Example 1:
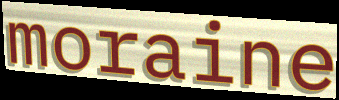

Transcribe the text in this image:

moraine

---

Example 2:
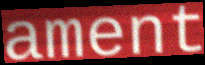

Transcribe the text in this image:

ament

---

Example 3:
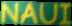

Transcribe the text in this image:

NAUI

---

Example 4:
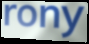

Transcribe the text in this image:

rony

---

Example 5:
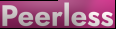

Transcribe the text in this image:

Peerless